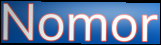
Nomor